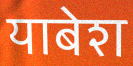
याबेश